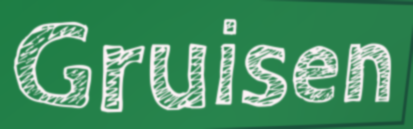
Gruisen